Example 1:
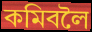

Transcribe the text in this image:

কমিবলৈ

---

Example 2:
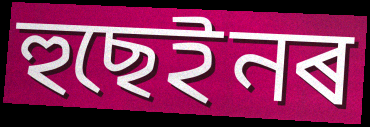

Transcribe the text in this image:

হুছেইনৰ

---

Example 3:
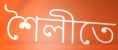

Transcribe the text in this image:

শৈলীতে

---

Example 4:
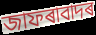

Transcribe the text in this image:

জাফৰাবাদৰ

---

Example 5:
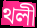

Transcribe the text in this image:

থলী